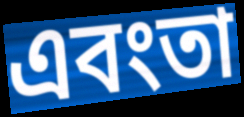
এবংতা